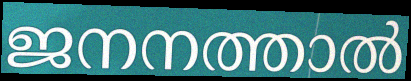
ജനനത്താൽ